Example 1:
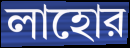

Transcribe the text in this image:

লাহোর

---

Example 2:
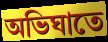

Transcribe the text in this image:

অভিঘাতে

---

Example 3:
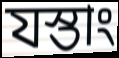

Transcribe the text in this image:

যস্তাং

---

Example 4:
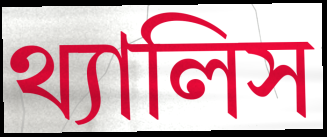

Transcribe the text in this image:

থ্যালিস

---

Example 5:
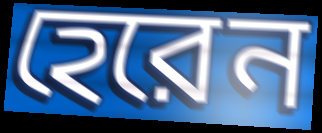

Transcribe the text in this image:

হেরেন